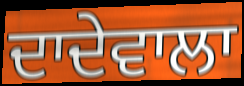
ਦਾਦੇਵਾਲਾ